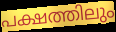
പക്ഷത്തിലും